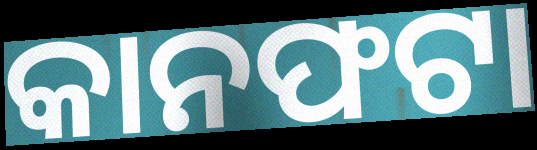
କାନଫଟା